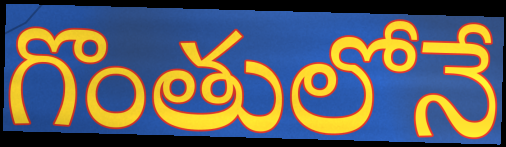
గొంతులోనే